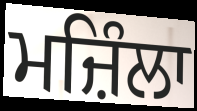
ਮਜ਼ਿੰਲਾ